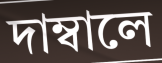
দাম্বালে